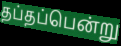
தப்தப்பென்று